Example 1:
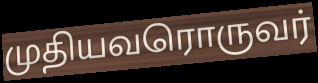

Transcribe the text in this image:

முதியவரொருவர்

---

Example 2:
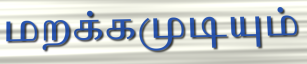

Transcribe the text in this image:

மறக்கமுடியும்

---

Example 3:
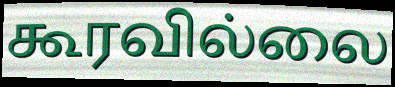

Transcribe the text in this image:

கூரவில்லை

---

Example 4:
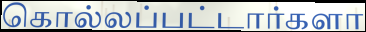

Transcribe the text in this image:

கொல்லப்பட்டார்களா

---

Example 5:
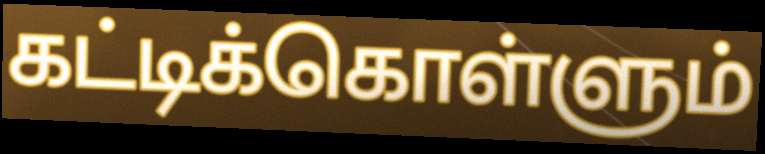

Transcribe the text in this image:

கட்டிக்கொள்ளும்